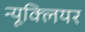
न्‍यूक्‍लियर